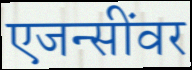
एजन्सींवर